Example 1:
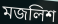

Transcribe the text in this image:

মজলিশ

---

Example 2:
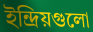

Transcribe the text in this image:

ইন্দ্রিয়গুলো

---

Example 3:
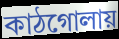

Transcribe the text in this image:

কাঠগোলায়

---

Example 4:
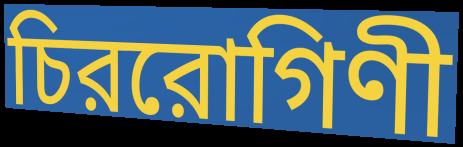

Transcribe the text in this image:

চিররোগিণী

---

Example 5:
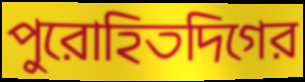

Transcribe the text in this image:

পুরোহিতদিগের